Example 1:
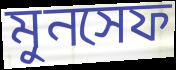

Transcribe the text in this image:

মুনসেফ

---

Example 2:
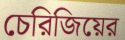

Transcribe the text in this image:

চেরিজিয়ের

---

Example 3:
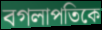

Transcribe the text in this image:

বগলাপতিকে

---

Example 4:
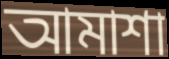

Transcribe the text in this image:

আমাশা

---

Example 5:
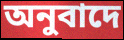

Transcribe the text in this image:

অনুবাদে